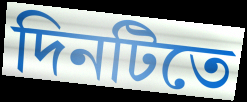
দিনটিতে